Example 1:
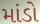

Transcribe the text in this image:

માંડો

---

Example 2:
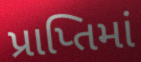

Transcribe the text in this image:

પ્રાપ્તિમાં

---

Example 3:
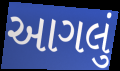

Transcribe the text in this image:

આગલું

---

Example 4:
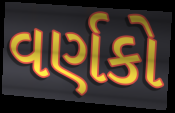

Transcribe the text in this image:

વર્ણકો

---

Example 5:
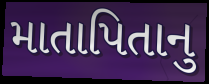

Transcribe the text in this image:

માતાપિતાનુ